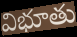
విభూతు